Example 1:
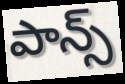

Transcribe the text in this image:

పాన్స్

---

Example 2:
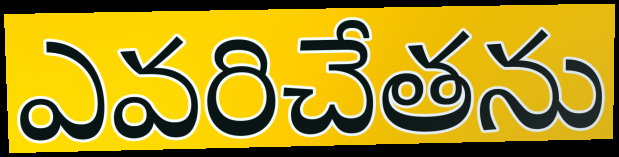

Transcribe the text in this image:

ఎవరిచేతను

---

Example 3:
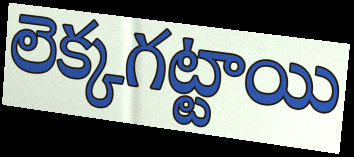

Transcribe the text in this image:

లెక్కగట్టాయి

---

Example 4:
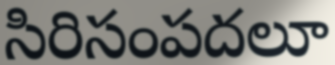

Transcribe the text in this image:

సిరిసంపదలూ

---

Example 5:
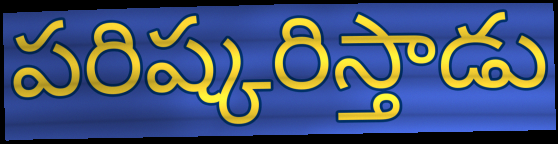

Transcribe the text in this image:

పరిష్కరిస్తాడు